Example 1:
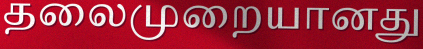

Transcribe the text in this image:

தலைமுறையானது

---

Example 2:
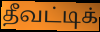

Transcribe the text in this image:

தீவட்டிக்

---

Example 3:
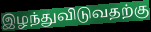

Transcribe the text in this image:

இழந்துவிடுவதற்கு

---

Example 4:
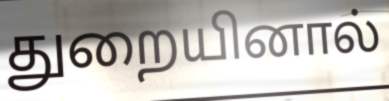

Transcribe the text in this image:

துறையினால்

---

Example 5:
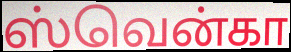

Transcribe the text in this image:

ஸ்வென்கா